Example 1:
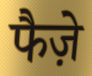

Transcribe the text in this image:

फैज़े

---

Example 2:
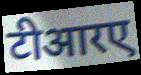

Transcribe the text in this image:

टीआरए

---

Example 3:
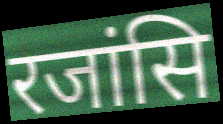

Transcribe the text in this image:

रजांसि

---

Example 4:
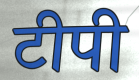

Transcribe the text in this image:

टीपी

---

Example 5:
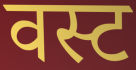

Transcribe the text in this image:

वस्ट